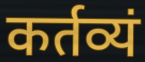
कर्तव्यं